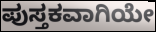
ಪುಸ್ತಕವಾಗಿಯೇ